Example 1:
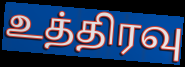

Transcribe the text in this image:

உத்திரவு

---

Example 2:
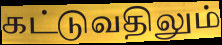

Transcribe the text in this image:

கட்டுவதிலும்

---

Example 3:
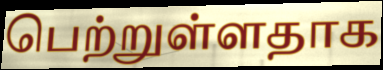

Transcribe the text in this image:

பெற்றுள்ளதாக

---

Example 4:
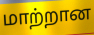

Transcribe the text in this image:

மாற்றான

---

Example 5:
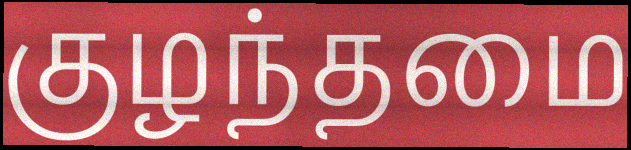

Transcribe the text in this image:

குழந்தமை